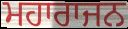
ਮਹਾਰਾਜਨ